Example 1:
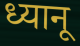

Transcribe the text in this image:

ध्यानू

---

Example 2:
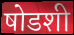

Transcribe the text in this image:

षोडशी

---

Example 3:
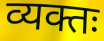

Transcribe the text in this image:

व्यक्तः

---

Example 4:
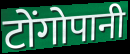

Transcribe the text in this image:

टोंगोपानी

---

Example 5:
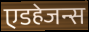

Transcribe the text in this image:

एडहेजन्स